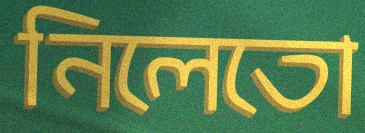
নিলেতো